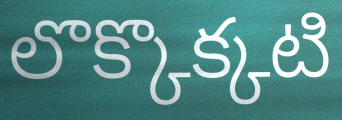
లొక్కొక్కటి